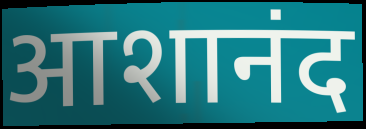
आशानंद